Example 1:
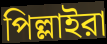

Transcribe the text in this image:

পিল্লাইরা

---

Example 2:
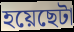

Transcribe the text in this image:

হয়েছেটা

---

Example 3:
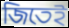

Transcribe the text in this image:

জিতেই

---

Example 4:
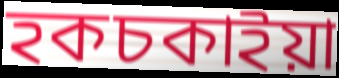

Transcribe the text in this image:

হকচকাইয়া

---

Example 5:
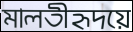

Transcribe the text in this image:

মালতীহৃদয়ে